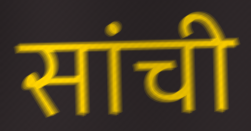
सांची